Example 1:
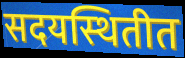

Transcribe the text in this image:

सदयस्थितीत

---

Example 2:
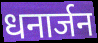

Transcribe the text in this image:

धनार्जन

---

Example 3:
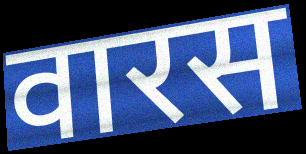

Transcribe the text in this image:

वारस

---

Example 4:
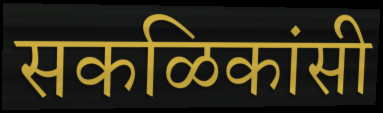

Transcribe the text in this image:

सकळिकांसी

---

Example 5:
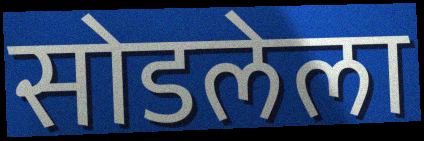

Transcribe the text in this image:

सोडलेला